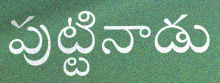
పుట్టినాడు